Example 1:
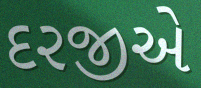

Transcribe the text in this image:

દરજીએ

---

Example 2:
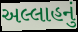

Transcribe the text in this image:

અલ્લાહનું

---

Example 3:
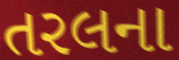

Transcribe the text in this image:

તરલના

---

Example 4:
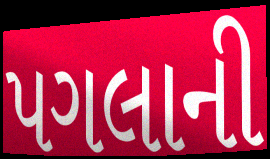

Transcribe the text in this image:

પગલાની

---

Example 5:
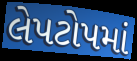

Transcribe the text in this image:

લેપટોપમાં